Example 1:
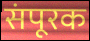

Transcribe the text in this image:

संपूरक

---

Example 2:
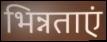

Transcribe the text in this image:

भिन्नताएं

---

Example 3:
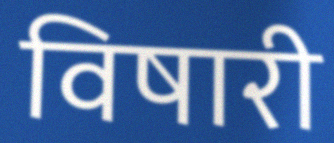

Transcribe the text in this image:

विषारी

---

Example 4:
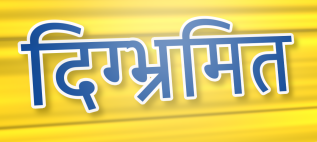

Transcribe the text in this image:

दिग्भ्रमित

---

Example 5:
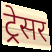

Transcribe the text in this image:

ट्रेसर